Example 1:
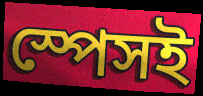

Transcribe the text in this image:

স্পেসই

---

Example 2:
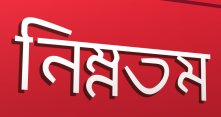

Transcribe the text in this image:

নিম্নতম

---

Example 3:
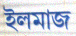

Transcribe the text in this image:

ইলমাজ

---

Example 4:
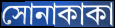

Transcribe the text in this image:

সোনাকাকা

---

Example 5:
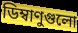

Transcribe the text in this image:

ডিম্বাণুগুলো